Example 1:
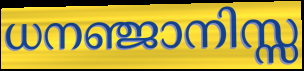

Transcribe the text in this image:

ധനഞ്ജാനിസ്സ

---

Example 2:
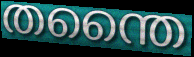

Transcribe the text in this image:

തന്തൈ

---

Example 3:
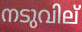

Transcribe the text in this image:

നടുവില്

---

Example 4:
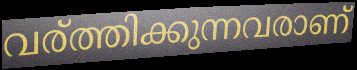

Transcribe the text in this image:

വര്ത്തിക്കുന്നവരാണ്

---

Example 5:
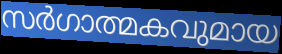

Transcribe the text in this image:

സർഗാത്മകവുമായ